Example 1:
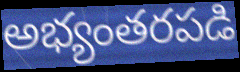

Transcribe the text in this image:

అభ్యంతరపడి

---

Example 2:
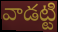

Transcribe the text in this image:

వాడట్టి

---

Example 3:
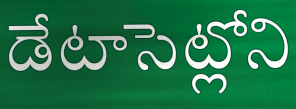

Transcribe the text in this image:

డేటాసెట్లోని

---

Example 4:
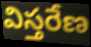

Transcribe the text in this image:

విస్తరేణ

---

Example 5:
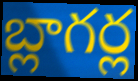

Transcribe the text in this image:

బ్లాగర్ల